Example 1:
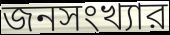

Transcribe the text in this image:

জনসংখ্যার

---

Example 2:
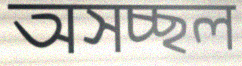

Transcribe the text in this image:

অসচ্ছল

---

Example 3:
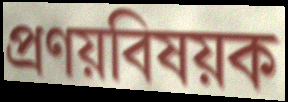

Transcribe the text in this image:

প্রণয়বিষয়ক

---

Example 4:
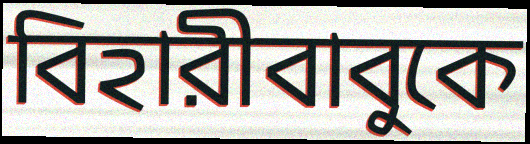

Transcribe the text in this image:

বিহারীবাবুকে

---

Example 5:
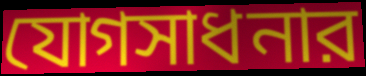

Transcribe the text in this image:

যোগসাধনার